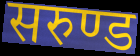
सरुण्ड